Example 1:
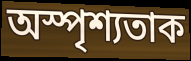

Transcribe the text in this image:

অস্পৃশ্যতাক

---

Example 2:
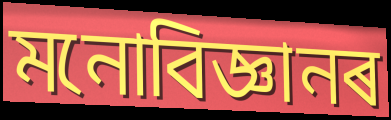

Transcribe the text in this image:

মনোবিজ্ঞানৰ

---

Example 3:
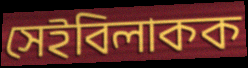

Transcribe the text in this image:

সেইবিলাকক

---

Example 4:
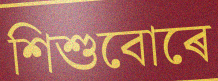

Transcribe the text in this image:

শিশুবোৰে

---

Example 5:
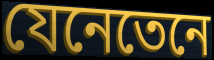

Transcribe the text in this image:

যেনেতেনে